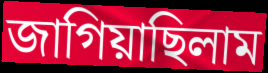
জাগিয়াছিলাম